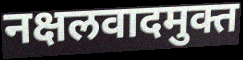
नक्षलवादमुक्त